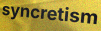
syncretism